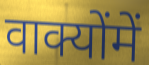
वाक्योंमें